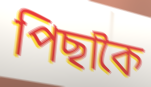
পিছাকৈ